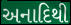
અનાદિથી